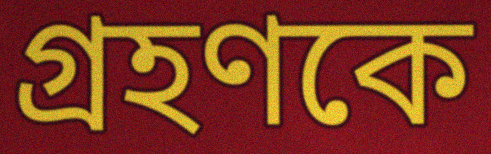
গ্ৰহণকে